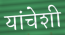
यांचेशी